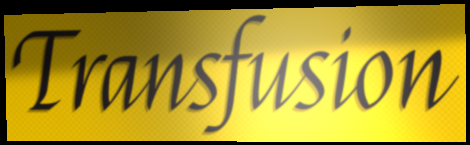
Transfusion